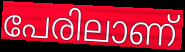
പേരിലാണ്